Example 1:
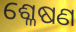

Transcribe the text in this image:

ଶ୍ଳେଷଣ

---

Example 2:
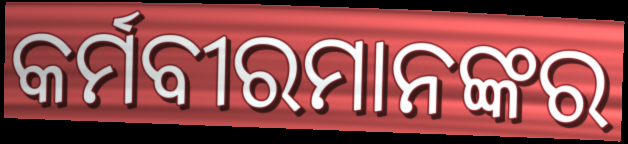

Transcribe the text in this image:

କର୍ମବୀରମାନଙ୍କର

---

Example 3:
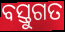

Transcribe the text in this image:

ବସ୍ତୁଗତ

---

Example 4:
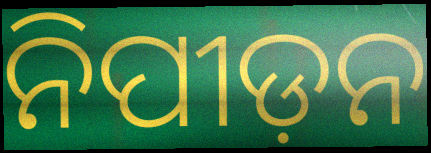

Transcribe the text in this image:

ନିପୀଡ଼ନ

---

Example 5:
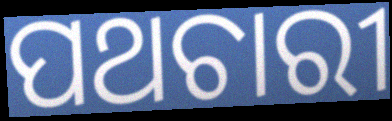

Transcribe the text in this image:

ପଥଚାରୀ